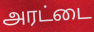
அரட்டை